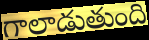
గాలాడుతుంది